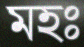
মহঃ